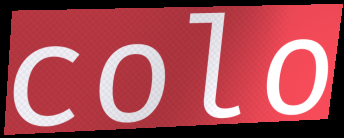
colo